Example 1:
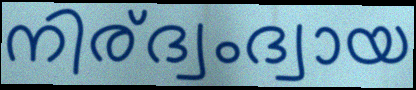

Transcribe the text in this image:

നിര്ദ്വംദ്വായ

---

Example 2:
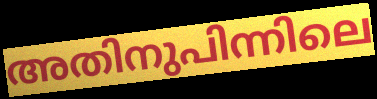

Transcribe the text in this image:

അതിനുപിന്നിലെ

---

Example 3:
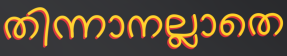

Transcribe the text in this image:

തിന്നാനല്ലാതെ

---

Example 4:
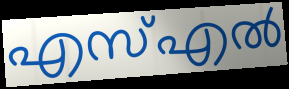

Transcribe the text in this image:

എസ്എൽ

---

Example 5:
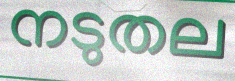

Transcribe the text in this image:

നടുതല